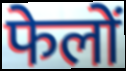
फेलों